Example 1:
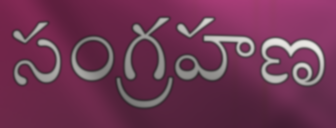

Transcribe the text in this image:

సంగ్రహణ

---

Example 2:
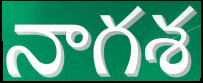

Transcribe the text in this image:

నాగశ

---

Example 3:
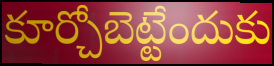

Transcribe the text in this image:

కూర్చోబెట్టేందుకు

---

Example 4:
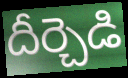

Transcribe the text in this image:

దీర్చెడి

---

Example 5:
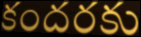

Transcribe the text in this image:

కందరకు